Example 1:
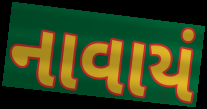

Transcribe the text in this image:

નાવાયં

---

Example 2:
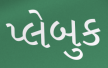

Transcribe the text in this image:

પ્લેબુક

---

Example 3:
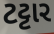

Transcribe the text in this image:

ટટ્ટાર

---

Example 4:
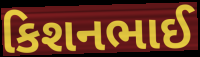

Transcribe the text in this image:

કિશનભાઈ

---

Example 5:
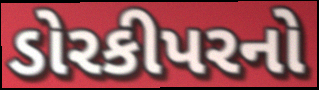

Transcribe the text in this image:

ડોરકીપરનો